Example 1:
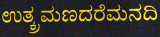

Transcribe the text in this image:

ಉತ್ಕ್ರಮಣದರೆಮನದಿ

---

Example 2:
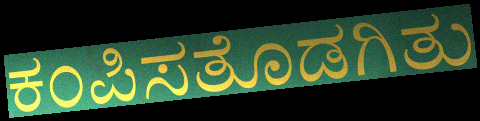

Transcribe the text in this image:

ಕಂಪಿಸತೊಡಗಿತು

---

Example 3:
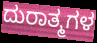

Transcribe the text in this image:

ದುರಾತ್ಮಗಳ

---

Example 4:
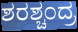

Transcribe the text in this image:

ಶರಶ್ಚಂದ್ರ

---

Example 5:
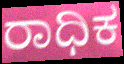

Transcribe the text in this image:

ರಾಧಿಕ